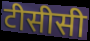
टीसीसी